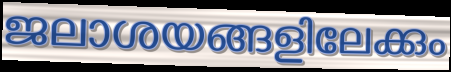
ജലാശയങ്ങളിലേക്കും